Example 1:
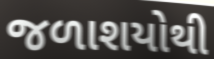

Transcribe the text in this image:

જળાશયોથી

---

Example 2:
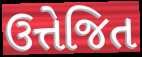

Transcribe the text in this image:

ઉત્તેજિત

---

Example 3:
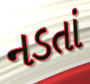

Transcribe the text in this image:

નડતાં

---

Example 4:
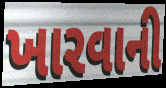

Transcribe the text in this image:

ખારવાની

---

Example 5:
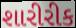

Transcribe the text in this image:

શારીરીક